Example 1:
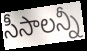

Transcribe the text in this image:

సీసాలన్నీ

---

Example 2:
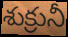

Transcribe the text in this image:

శుక్రునీ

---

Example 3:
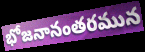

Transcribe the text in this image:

భోజనానంతరమున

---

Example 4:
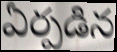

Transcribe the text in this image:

ఏర్పడిన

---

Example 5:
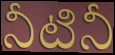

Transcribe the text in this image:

నీటినీ